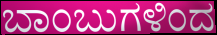
ಬಾಂಬುಗಳಿಂದ